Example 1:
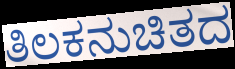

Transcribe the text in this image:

ತಿಲಕನುಚಿತದ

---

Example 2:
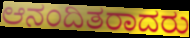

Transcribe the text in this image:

ಆನಂದಿತರಾದರು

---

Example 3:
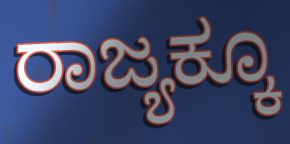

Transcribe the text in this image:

ರಾಜ್ಯಕ್ಕೂ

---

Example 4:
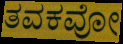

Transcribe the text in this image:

ತವಕವೋ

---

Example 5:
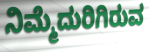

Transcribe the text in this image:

ನಿಮ್ಮೆದುರಿಗಿರುವ